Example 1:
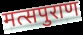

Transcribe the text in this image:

मत्सपुराण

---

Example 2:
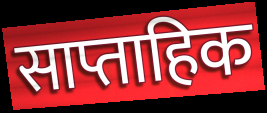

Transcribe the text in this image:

साप्ताहिक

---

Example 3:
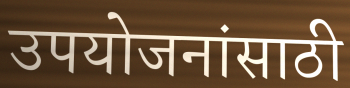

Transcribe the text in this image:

उपयोजनांसाठी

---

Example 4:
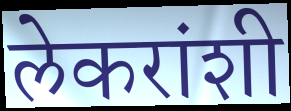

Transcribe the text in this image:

लेकरांशी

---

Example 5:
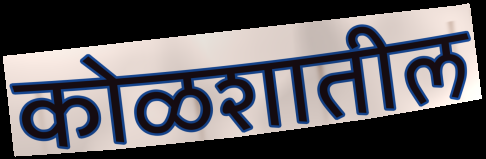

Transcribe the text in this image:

कोळशातील